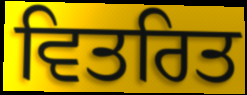
ਵਿਤਰਿਤ